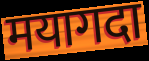
मयागदा